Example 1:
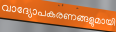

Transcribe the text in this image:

വാദ്യോപകരണങ്ങളുമായി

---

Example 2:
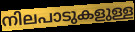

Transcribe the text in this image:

നിലപാടുകളുള്ള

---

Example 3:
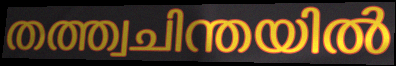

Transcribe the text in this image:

തത്ത്വചിന്തയിൽ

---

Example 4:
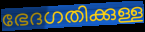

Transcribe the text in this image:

ഭേദഗതിക്കുള്ള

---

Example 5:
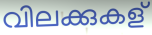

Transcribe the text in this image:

വിലക്കുകള്